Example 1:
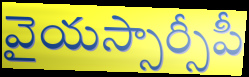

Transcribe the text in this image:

వైయస్సార్సీపీ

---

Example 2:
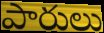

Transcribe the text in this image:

పారులు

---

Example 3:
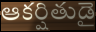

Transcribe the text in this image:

ఆకర్షితుడై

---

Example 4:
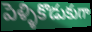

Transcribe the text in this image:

పెళ్ళికొడుకుగా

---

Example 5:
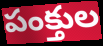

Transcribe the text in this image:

పంక్తుల